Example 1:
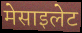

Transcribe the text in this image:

मेसाइलेट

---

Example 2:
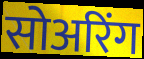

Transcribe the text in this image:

सोअरिंग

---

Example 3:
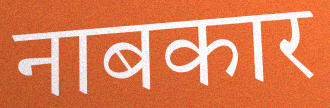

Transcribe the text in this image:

नाबकार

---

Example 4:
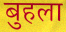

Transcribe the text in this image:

बुहला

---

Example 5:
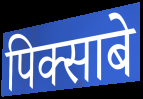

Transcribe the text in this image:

पिक्साबे